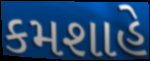
કમશાહે